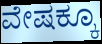
ವೇಷಕ್ಕೂ